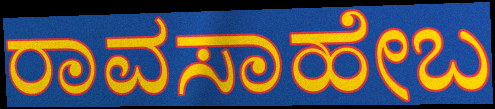
ರಾವಸಾಹೇಬ